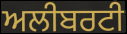
ਅਲੀਬਰਟੀ